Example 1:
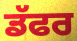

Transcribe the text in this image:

ਡੱਫਰ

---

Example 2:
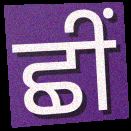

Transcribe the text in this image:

ਛੀਂ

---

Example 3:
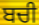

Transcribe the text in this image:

ਬਚੀ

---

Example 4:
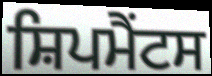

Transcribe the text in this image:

ਸ਼ਿਪਮੈਂਟਸ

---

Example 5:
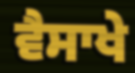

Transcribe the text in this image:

ਵੈਸਾਖੇ